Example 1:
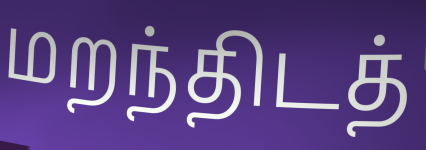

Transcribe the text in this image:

மறந்திடத்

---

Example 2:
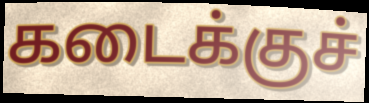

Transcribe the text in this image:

கடைக்குச்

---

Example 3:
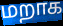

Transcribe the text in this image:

மறாக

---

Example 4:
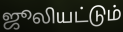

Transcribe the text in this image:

ஜூலியட்டும்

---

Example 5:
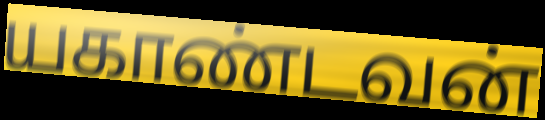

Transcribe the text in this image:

யகாண்டவன்